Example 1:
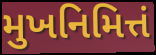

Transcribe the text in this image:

મુખનિમિત્તં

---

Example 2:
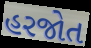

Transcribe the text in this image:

હરજોત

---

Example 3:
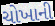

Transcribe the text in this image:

ચોખાની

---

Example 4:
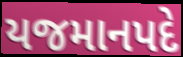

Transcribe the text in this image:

યજમાનપદે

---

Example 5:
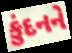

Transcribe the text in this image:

કુંદનને